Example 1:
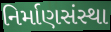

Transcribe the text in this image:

નિર્માણસંસ્થા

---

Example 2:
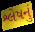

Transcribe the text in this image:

શ્લેષનું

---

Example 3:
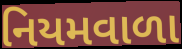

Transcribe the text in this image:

નિયમવાળા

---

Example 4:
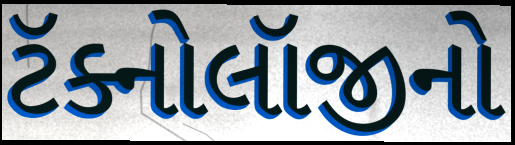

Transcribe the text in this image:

ટૅક્નોલૉજીનો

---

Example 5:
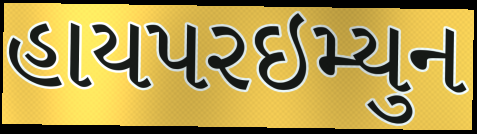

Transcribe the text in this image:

હાયપરઇમ્યુન